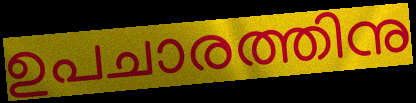
ഉപചാരത്തിനു